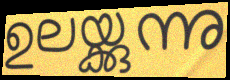
ഉലയ്ക്കുന്നു